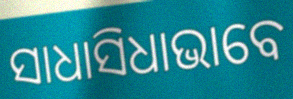
ସାଧାସିଧାଭାବେ